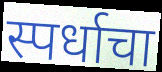
स्पर्धाचा